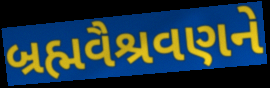
બ્રહ્મવૈશ્રવણને